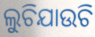
ଲୁଚିଯାଉଚି